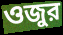
ওজুর